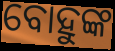
ବୋହୁଙ୍କ